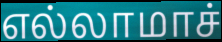
எல்லாமாச்